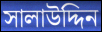
সালাউদ্দিন